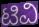
ಟಿವಿ